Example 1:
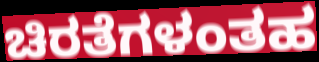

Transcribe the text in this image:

ಚಿರತೆಗಳಂತಹ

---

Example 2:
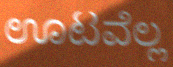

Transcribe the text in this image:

ಊಟವೆಲ್ಲ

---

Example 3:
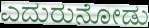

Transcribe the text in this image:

ಎದುರುನೋಡು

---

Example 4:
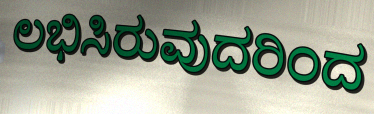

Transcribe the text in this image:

ಲಭಿಸಿರುವುದರಿಂದ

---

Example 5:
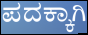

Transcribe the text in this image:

ಪದಕ್ಕಾಗಿ